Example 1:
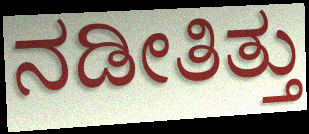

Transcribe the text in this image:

ನಡೀತಿತ್ತು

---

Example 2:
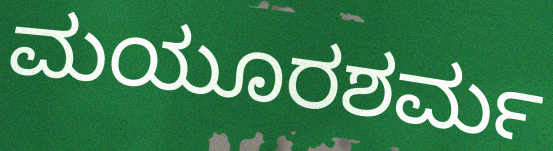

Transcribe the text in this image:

ಮಯೂರಶರ್ಮ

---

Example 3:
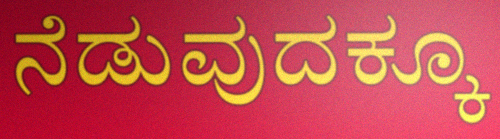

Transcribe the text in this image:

ನೆಡುವುದಕ್ಕೂ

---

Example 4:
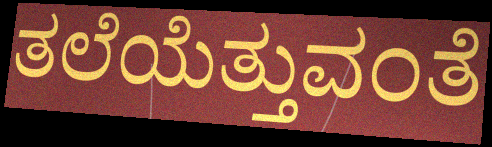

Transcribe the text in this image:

ತಲೆಯೆತ್ತುವಂತೆ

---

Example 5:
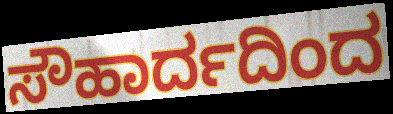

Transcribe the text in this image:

ಸೌಹಾರ್ದದಿಂದ